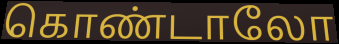
கொண்டாலோ